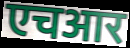
एचआर